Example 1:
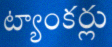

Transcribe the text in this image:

ట్యాంకర్లు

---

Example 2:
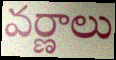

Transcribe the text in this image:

వర్ణాలు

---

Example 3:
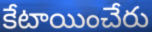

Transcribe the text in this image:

కేటాయించేరు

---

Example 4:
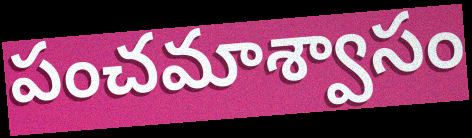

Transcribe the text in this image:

పంచమాశ్వాసం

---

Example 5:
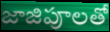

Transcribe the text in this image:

జాజిపూలతో